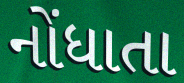
નોંધાતા